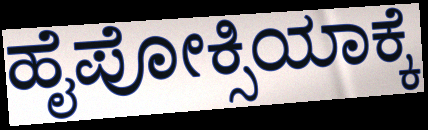
ಹೈಪೋಕ್ಸಿಯಾಕ್ಕೆ